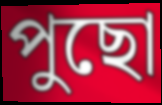
পুছো